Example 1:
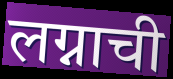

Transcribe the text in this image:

लग्नाची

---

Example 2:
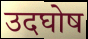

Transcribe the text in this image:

उदघोष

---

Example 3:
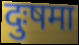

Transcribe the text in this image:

दुःषमा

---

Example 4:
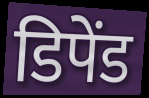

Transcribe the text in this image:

डिपेंड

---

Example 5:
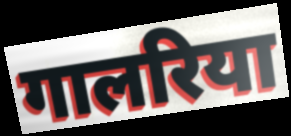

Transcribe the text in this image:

गालरिया